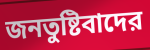
জনতুষ্টিবাদের